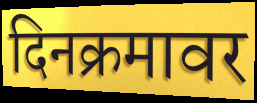
दिनक्रमावर